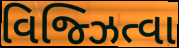
વિજ્ઝિત્વા